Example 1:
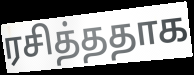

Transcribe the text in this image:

ரசித்ததாக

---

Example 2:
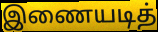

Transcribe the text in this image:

இணையடித்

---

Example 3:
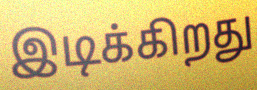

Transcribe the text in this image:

இடிக்கிறது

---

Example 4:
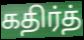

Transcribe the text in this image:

கதிர்த்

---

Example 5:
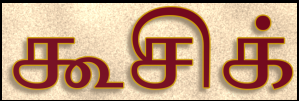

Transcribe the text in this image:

கூசிக்